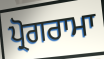
ਪ੍ਰੋਗਰਾਮਾ